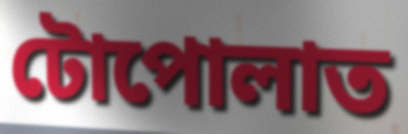
টোপোলাত